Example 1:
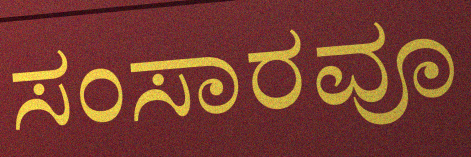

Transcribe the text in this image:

ಸಂಸಾರವೂ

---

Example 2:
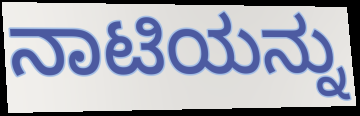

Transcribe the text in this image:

ನಾಟಿಯನ್ನು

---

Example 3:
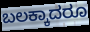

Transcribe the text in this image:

ಬಲಕ್ಕಾದರೂ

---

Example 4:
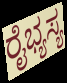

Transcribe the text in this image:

ರೈಭ್ಯಸ್ಯ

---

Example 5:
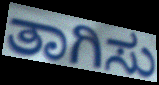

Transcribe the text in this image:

ತಾಗಿಸು